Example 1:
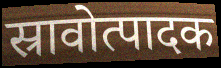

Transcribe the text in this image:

स्रावोत्पादक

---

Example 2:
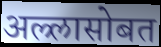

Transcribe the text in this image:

अल्लासोबत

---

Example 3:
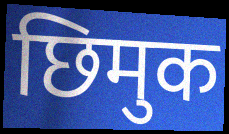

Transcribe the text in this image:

छिमुक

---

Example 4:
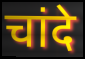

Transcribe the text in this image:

चांदे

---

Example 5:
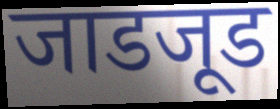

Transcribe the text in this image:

जाडजूड